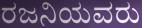
ರಜನಿಯವರು